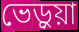
ভেড়ুয়া